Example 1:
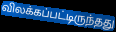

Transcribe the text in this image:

விலக்கப்பட்டிருந்தது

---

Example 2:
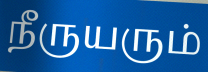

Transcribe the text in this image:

நீருயரும்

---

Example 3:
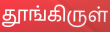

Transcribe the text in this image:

தூங்கிருள்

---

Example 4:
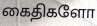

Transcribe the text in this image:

கைதிகளோ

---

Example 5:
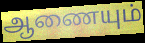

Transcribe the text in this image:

ஆணையும்